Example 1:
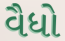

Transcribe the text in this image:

વૈધો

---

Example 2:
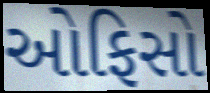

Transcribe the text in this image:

ઓફિસો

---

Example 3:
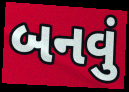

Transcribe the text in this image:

બનવું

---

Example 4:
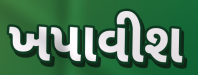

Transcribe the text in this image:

ખપાવીશ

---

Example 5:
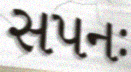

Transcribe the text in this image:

સપનઃ